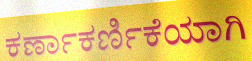
ಕರ್ಣಾಕರ್ಣಿಕೆಯಾಗಿ